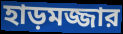
হাড়মজ্জার